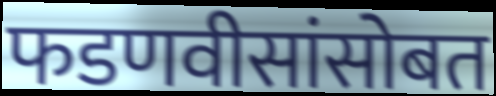
फडणवीसांसोबत